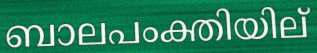
ബാലപംക്തിയില്